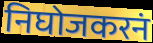
निघोजकरनं